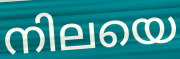
നിലയെ